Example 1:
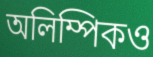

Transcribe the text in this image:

অলিম্পিকও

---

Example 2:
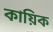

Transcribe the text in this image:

কায়িক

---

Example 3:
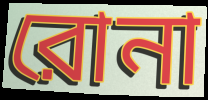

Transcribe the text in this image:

রোনা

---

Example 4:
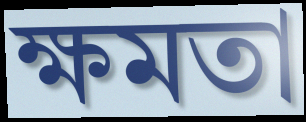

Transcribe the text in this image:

ক্ষমতা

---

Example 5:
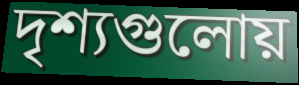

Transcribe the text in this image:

দৃশ্যগুলোয়